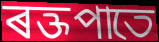
ৰক্তপাতে